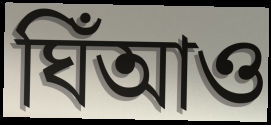
ঘিঁআও